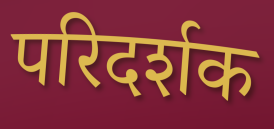
परिदर्शक